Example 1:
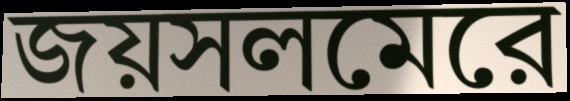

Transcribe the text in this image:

জয়সলমেরে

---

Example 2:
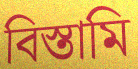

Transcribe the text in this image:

বিস্তামি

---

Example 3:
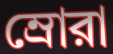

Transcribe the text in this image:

ম্রোরা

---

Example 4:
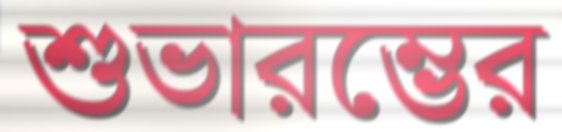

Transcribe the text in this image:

শুভারম্ভের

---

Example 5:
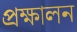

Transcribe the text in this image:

প্রক্ষালন